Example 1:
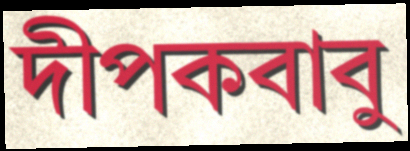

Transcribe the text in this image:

দীপকবাবু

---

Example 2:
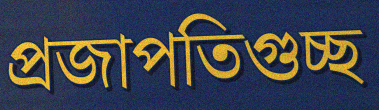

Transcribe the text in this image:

প্রজাপতিগুচ্ছ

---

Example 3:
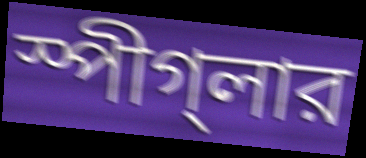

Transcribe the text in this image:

স্পীগ্‌লার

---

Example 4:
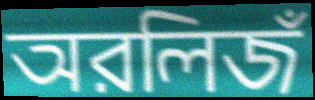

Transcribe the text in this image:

অরলিজঁ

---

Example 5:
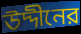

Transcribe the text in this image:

উদ্দীনের